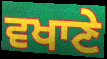
ਵਖਾਣੇ